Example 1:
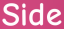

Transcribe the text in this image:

Side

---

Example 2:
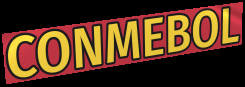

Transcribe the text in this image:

CONMEBOL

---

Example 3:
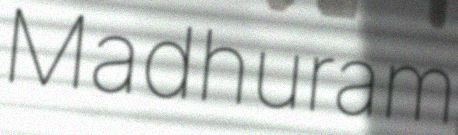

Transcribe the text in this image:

Madhuram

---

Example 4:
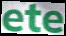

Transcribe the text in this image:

ete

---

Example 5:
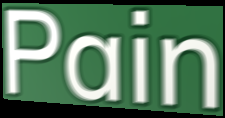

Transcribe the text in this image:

Pain